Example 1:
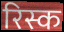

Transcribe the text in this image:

रिस्क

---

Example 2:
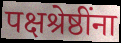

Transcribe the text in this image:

पक्षश्रेष्ठींना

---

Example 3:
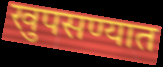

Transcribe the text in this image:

खुपसण्यात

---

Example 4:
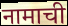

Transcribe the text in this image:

नामाची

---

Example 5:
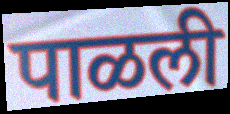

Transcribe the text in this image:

पाळली